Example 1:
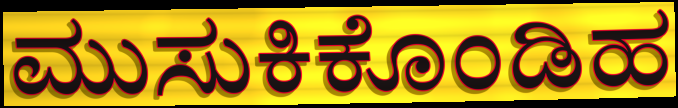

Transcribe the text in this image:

ಮುಸುಕಿಕೊಂಡಿಹ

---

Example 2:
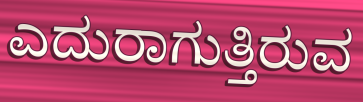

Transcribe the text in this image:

ಎದುರಾಗುತ್ತಿರುವ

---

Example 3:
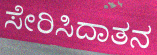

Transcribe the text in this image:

ಸೇರಿಸಿದಾತನ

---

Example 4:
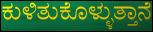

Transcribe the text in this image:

ಕುಳಿತುಕೊಳ್ಳುತ್ತಾನೆ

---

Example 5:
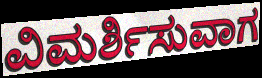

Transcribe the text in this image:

ವಿಮರ್ಶಿಸುವಾಗ